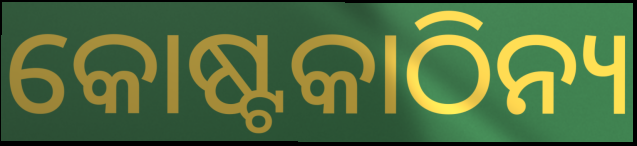
କୋଷ୍ଟକାଠିନ୍ୟ